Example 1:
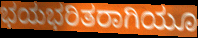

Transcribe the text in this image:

ಭಯಭರಿತರಾಗಿಯೂ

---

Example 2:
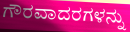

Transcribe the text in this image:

ಗೌರವಾದರಗಳನ್ನು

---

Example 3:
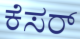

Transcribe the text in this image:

ಕೆಸರ್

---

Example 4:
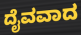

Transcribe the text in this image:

ದೈವವಾದ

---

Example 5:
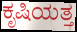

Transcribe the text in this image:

ಕೃಷಿಯತ್ತ